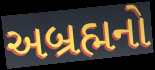
અબ્રહ્મનો